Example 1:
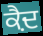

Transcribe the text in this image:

ਕ਼ੈਦ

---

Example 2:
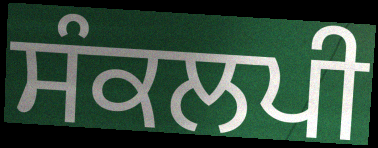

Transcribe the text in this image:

ਸੰਕਲਪੀ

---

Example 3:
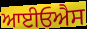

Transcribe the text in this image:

ਆਈਓਐਸ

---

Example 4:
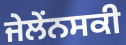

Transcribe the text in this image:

ਜੇਲੇਂਨਸਕੀ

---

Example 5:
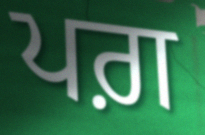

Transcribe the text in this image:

ਪਗ਼